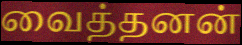
வைத்தனன்